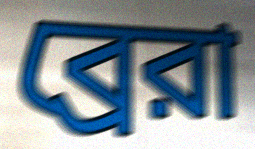
ব্রেরা